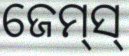
ଜେମ୍‌ସ୍